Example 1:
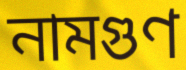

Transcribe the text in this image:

নামগুণ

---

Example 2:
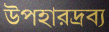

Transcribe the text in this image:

উপহারদ্রব্য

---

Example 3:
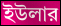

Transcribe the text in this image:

ইউলার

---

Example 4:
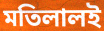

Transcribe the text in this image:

মতিলালই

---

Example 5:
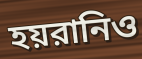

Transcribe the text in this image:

হয়রানিও